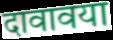
दावावया